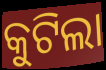
କୁଟିଲା